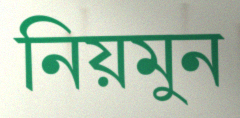
নিয়মুন